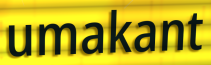
umakant